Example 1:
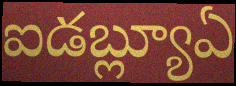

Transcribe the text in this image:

ఐడబ్ల్యూఏ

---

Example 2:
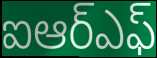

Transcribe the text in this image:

ఐఆర్ఎఫ్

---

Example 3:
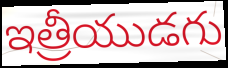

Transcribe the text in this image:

ఇత్రీయుడగు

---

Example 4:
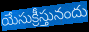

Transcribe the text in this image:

యేసుక్రీస్తునందు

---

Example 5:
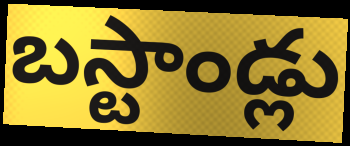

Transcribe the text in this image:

బస్టాండ్లు